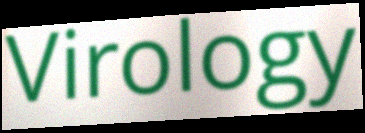
Virology